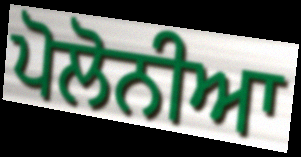
ਪੋਲੋਨੀਆ